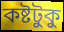
কষ্টটুকু